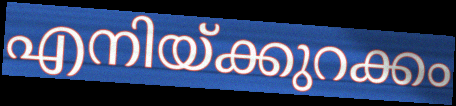
എനിയ്ക്കുറക്കം